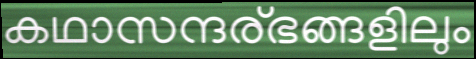
കഥാസന്ദര്ഭങ്ങളിലും